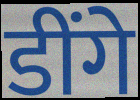
डींगे